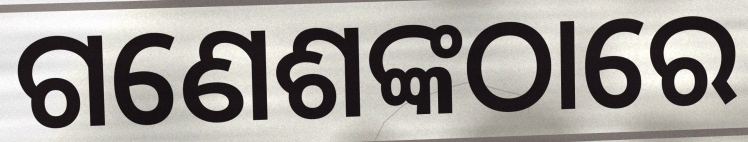
ଗଣେଶଙ୍କଠାରେ